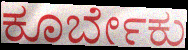
ಕೂರ್ಬೇಕು